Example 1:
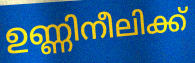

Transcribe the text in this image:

ഉണ്ണിനീലിക്ക്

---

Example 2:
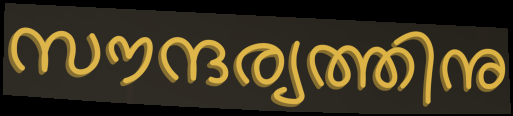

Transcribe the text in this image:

സൗന്ദര്യത്തിനു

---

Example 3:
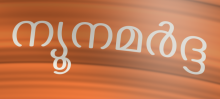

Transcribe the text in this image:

ന്യൂനമർദ്ദ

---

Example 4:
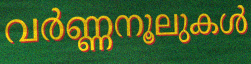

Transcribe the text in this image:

വർണ്ണനൂലുകൾ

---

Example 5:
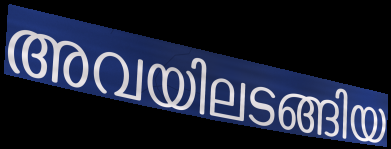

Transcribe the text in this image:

അവയിലടങ്ങിയ